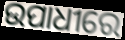
ଉପାଧୀରେ